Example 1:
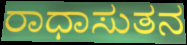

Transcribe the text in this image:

ರಾಧಾಸುತನ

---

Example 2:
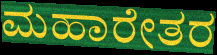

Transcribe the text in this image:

ಮಹಾರೇತರ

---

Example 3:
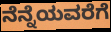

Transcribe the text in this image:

ನೆನ್ನೆಯವರೆಗೆ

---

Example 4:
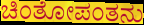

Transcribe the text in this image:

ಚಿಂತೋಪಂತನು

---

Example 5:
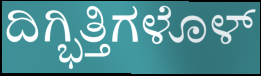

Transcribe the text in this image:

ದಿಗ್ಭಿತ್ತಿಗಳೊಳ್